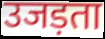
उजड़ता